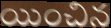
యించిన